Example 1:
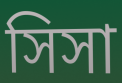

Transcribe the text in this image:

সিসা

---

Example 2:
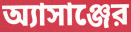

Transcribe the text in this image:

অ্যাসাঞ্জের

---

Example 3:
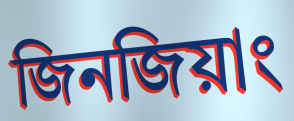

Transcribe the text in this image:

জিনজিয়াং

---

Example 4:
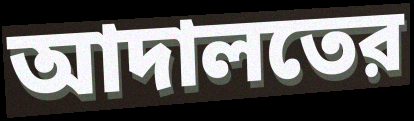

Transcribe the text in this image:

আদালতের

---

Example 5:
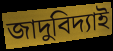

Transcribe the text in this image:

জাদুবিদ্যাই